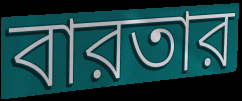
বারতার